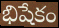
భిషేకం